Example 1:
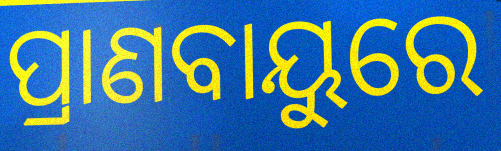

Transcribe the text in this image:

ପ୍ରାଣବାୟୁରେ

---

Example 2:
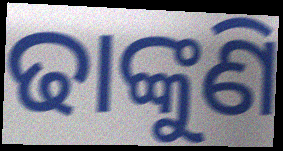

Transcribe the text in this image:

ଢାଙ୍କୁଣି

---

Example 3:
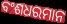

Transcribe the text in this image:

ବଂଶଧରମାନ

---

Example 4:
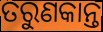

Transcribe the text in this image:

ତରୁଣକାନ୍ତ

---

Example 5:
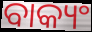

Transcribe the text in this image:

ବାକ୍ୟଂ